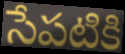
సేపటికి